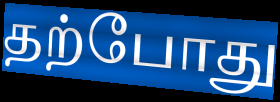
தற்போது